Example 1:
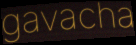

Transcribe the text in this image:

gavacha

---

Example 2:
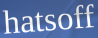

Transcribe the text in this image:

hatsoff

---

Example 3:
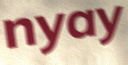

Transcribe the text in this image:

nyay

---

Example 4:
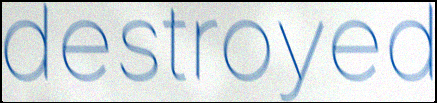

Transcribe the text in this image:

destroyed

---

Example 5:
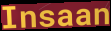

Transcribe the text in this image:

Insaan